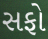
સફો